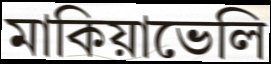
মাকিয়াভেলি